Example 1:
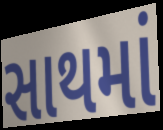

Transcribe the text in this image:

સાથમાં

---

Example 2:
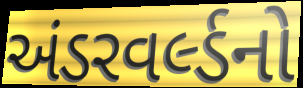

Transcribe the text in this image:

અંડરવર્લ્ડનો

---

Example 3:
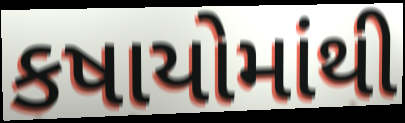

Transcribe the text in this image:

કષાયોમાંથી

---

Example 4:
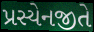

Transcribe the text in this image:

પ્રસ્યેનજીતે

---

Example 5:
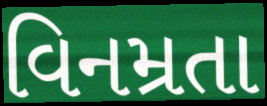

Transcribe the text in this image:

વિનમ્રતા